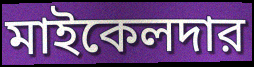
মাইকেলদার